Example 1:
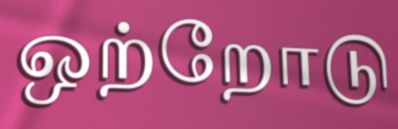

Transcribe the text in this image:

ஒற்றோடு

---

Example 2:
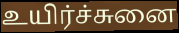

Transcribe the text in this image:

உயிர்ச்சுனை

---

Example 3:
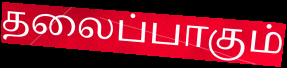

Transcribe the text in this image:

தலைப்பாகும்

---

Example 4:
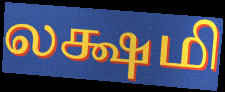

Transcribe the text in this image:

லக்ஷமி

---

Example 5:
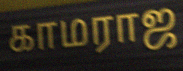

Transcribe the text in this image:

காமராஜ